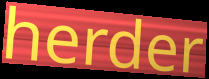
herder